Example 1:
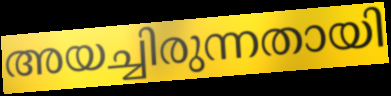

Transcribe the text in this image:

അയച്ചിരുന്നതായി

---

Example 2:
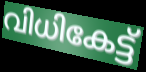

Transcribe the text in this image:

വിധികേട്ട്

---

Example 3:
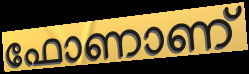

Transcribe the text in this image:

ഫോണാണ്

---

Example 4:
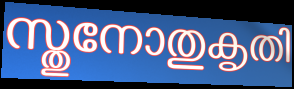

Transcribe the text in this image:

സ്തുനോതുകൃതി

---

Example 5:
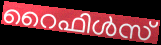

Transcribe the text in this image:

റൈഫിൾസ്